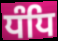
ਧੰਧਿ